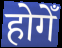
होगेँ